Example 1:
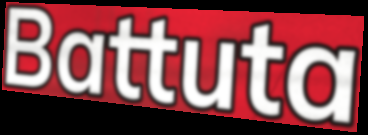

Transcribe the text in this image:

Battuta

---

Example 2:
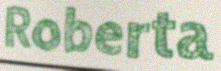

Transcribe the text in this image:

Roberta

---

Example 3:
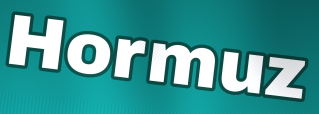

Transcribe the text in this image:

Hormuz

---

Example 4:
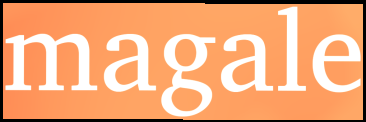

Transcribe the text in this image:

magale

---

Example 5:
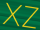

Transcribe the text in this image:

XZ